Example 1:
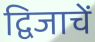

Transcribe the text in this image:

द्विजाचें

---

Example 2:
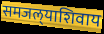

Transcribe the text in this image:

समजल्याशिवाय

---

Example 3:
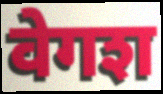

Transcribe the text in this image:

वेगश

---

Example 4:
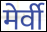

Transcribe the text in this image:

मेर्वी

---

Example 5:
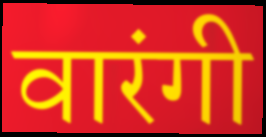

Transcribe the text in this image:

वारंगी